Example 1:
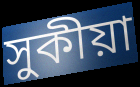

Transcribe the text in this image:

সুকীয়া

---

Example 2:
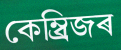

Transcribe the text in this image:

কেম্ব্ৰিজৰ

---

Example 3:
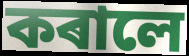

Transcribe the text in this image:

কৰালে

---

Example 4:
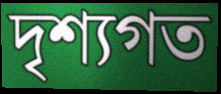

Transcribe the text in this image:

দৃশ্যগত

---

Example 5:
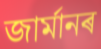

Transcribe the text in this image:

জাৰ্মানৰ